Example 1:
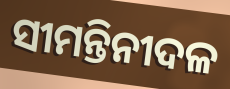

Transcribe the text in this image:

ସୀମନ୍ତିନୀଦଳ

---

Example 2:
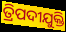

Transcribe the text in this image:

ତ୍ରିପଦୀଯୁକ୍ତି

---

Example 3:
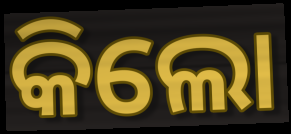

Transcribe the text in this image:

କିଲୋ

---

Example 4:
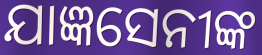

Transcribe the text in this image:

ଯାଜ୍ଞସେନୀଙ୍କ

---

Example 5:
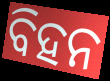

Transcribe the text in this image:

ବିହନ